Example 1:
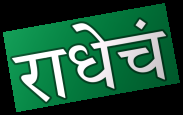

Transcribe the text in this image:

राधेचं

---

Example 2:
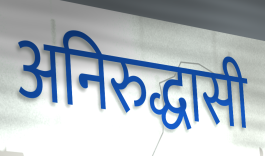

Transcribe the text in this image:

अनिरुद्धासी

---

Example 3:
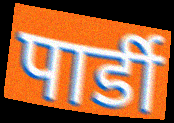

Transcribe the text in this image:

पार्डी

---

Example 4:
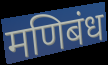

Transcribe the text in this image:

मणिबंध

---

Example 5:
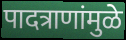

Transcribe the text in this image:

पादत्राणांमुळे